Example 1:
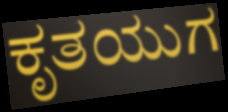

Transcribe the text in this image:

ಕೃತಯುಗ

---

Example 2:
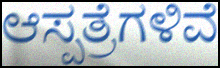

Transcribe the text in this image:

ಆಸ್ಪತ್ರೆಗಳಿವೆ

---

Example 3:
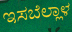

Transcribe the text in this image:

ಇಸಬೆಲ್ಲಾಳ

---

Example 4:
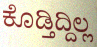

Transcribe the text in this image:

ಕೊಡ್ತಿದ್ದಿಲ್ಲ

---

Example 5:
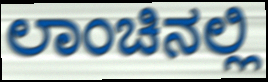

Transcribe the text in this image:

ಲಾಂಚಿನಲ್ಲಿ